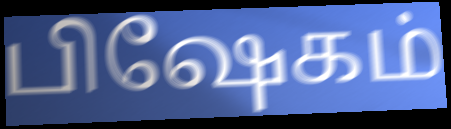
பிஷேகம்